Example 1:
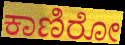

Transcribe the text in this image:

ಕಾಣಿರೋ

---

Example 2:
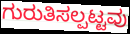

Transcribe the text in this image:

ಗುರುತಿಸಲ್ಪಟ್ಟವು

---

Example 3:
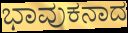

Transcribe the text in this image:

ಭಾವುಕನಾದ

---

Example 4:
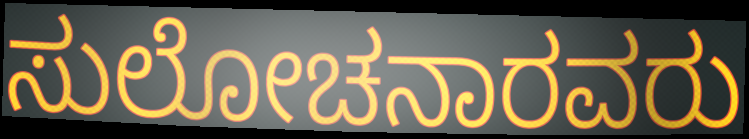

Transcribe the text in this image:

ಸುಲೋಚನಾರವರು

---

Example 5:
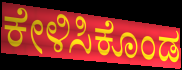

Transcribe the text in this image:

ಕೇಳಿಸಿಕೊಂಡ